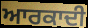
ਆਰਕਾਦੀ